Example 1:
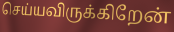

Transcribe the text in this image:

செய்யவிருக்கிறேன்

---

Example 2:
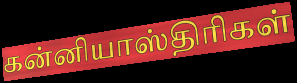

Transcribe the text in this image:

கன்னியாஸ்திரிகள்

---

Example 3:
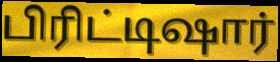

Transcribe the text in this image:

பிரிட்டிஷார்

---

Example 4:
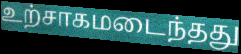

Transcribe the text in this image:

உற்சாகமடைந்தது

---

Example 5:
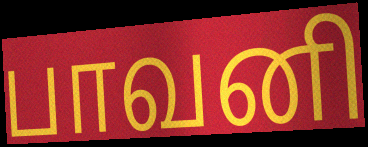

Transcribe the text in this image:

பாவனி